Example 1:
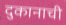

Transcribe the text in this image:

दुकानाची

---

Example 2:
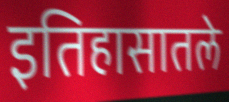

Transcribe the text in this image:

इतिहासातले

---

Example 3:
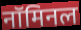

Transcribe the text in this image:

नॉमिनल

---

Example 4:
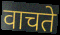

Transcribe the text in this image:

वाचते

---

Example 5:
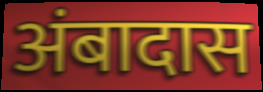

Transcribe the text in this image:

अंबादास